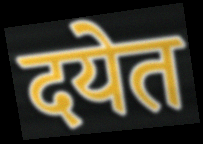
दयेत